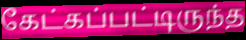
கேட்கப்பட்டிருந்த